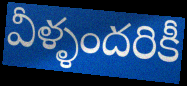
వీళ్ళందరికీ